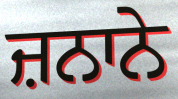
ਜ਼ਨਾਨੇ